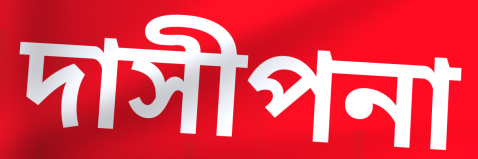
দাসীপনা